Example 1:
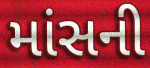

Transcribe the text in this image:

માંસની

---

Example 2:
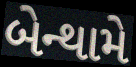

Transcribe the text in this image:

બેન્થામે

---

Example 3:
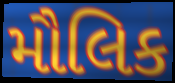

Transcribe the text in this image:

મૌલિક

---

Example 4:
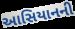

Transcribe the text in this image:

આસિયાનની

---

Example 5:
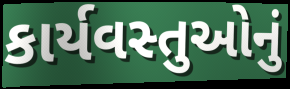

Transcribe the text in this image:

કાર્યવસ્તુઓનું